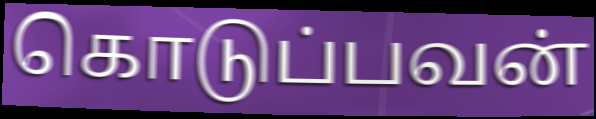
கொடுப்பவன்